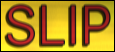
SLIP